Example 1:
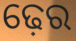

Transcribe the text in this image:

ଢ଼େର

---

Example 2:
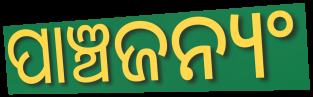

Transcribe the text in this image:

ପାଞ୍ଚଜନ୍ୟଂ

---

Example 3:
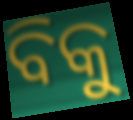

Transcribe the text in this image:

ବିକୁ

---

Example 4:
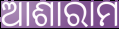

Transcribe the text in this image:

ଆଶାରାମ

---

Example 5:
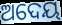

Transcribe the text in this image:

ଅଦେୟ